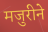
मजुरीने